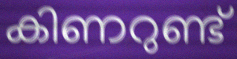
കിണറുണ്ട്